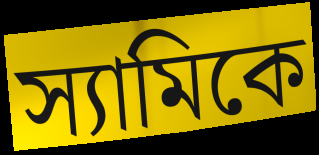
স্যামিকে